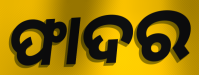
ଫାଦର